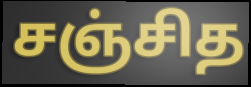
சஞ்சித